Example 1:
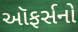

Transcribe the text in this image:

ઑફર્સનો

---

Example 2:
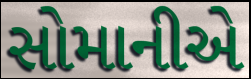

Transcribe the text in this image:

સોમાનીએ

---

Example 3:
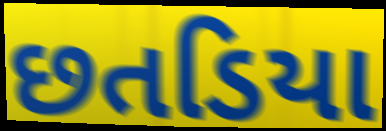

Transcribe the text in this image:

છતડિયા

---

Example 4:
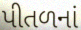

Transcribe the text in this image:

પીતળનાં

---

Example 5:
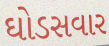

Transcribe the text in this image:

ઘોડસવાર